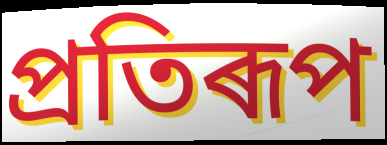
প্ৰতিৰূপ